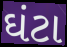
ઘંટા